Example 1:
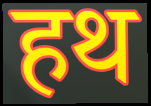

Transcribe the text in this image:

हथ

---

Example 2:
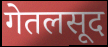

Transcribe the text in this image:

गेतलसूद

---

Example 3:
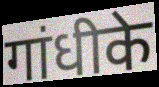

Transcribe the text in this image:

गांधीके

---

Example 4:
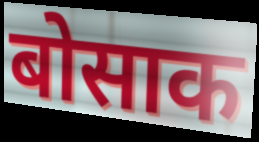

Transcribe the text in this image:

बोसाक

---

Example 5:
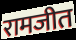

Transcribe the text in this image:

रामजीत